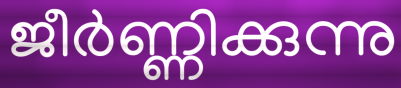
ജീർണ്ണിക്കുന്നു